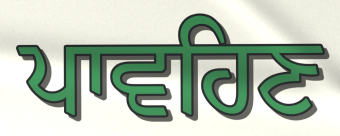
ਪਾਵਹਿਣ